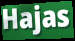
Hajas